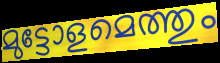
മുട്ടോളമെത്തും